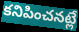
కనిపించనట్లే